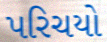
પરિચયો